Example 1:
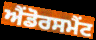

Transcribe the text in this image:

ਐਂਡੋਰਸਮੈਂਟ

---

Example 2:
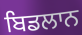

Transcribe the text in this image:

ਬਿਡਲਾਨ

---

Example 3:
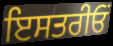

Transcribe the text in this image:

ਇਸਤਰੀਓਂ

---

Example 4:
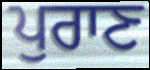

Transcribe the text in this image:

ਪੁਰਾਣ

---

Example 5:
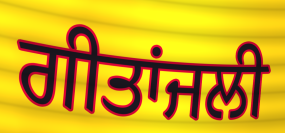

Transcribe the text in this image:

ਗੀਤਾਂਜਲੀ